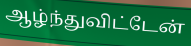
ஆழ்ந்துவிட்டேன்